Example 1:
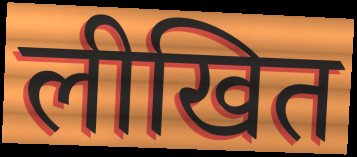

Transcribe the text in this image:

लीखित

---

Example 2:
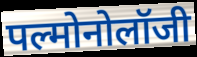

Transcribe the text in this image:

पल्मोनोलॉजी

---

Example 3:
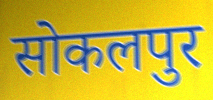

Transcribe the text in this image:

सोकलपुर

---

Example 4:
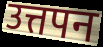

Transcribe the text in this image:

उत्तपन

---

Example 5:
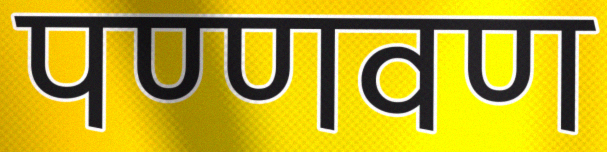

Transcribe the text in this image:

पण्णवण